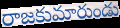
రాజకుమారుండు